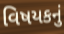
વિષયકનું